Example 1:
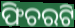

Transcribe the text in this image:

ଫିଚରଟି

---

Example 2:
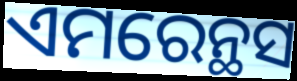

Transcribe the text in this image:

ଏମରେନ୍ଥସ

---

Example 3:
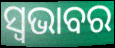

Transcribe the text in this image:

ସ୍ୱଭାବର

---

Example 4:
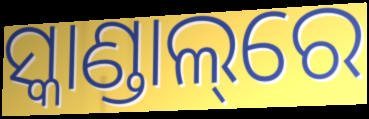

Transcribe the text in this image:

ସ୍କାଣ୍ଡାଲ୍‌ରେ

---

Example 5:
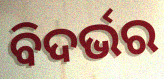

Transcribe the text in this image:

ବିଦର୍ଭର